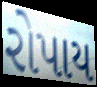
રોપાય